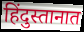
हिंदुस्तानात